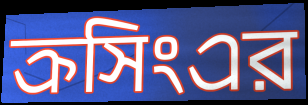
ক্রসিংএর